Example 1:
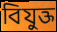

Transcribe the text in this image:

বিযুক্ত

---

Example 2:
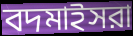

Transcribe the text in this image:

বদমাইসরা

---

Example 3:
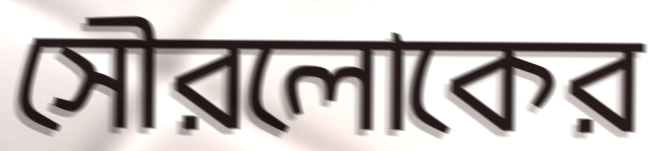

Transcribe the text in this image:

সৌরলোকের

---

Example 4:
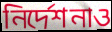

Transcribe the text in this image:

নির্দেশনাও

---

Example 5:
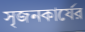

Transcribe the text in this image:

সৃজনকার্যের